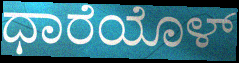
ಧಾರೆಯೊಳ್